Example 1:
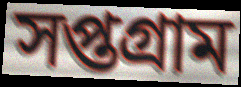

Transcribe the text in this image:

সপ্তগ্রাম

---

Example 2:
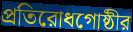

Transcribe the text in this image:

প্রতিরোধগোষ্ঠীর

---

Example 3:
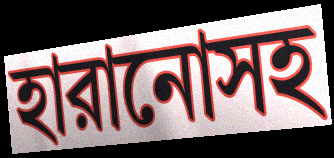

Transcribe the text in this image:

হারানোসহ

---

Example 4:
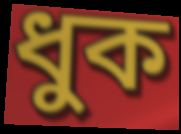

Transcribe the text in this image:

ধুক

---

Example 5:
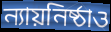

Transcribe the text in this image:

ন্যায়নিষ্ঠাও